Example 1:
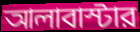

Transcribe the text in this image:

আলাবাস্টার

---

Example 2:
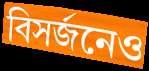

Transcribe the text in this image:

বিসর্জনেও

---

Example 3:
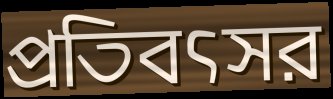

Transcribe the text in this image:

প্রতিবৎসর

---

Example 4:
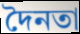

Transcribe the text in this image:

দৈনতা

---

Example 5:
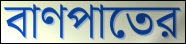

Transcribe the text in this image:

বাণপাতের